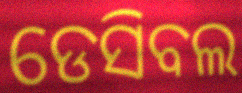
ଡେସିବଲ